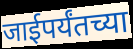
जाईपर्यंतच्या